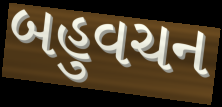
બહુવચન